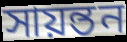
সায়ন্তন